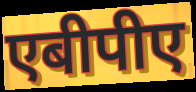
एबीपीए